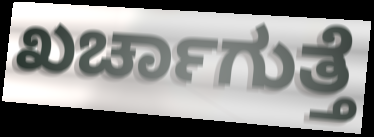
ಖರ್ಚಾಗುತ್ತೆ